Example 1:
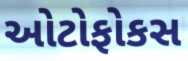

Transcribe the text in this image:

ઓટોફોકસ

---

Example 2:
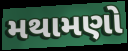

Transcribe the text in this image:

મથામણો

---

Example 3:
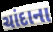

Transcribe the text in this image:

ચાંદાના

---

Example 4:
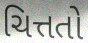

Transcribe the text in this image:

ચિત્તતો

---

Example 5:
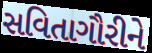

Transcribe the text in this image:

સવિતાગૌરીને